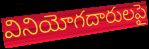
వినియోగదారులపై